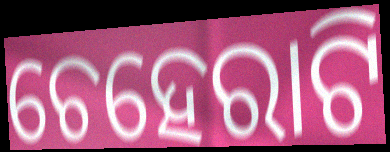
ଚେହେରାଟି